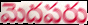
మెదపరు